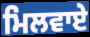
ਮਿਲਵਾਏ